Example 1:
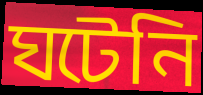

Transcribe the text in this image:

ঘটেনি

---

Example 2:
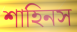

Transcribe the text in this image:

শাহিনস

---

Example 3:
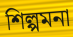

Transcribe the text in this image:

শিল্পমনা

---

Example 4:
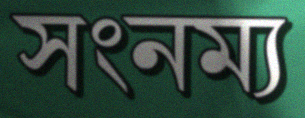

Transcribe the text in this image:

সংনম্য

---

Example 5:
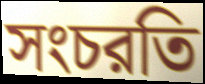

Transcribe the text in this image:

সংচরতি